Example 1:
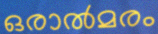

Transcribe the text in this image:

ഒരാൽമരം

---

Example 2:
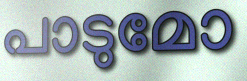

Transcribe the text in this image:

പാടുമോ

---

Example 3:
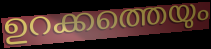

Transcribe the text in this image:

ഉറക്കത്തെയും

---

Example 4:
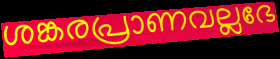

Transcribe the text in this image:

ശങ്കരപ്രാണവല്ലഭേ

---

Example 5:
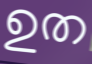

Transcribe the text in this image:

ഉത